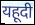
यहूदी